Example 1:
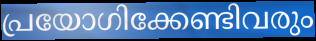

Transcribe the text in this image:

പ്രയോഗിക്കേണ്ടിവരും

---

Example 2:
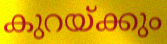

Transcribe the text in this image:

കുറയ്ക്കും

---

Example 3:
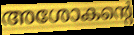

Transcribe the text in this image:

അശോകന്റെ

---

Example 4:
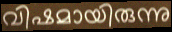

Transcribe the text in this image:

വിഷമായിരുന്നു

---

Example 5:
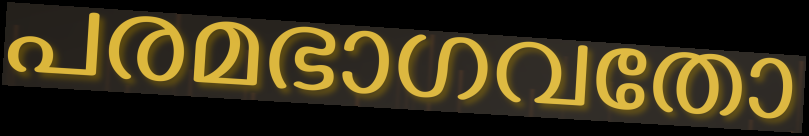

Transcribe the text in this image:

പരമഭാഗവതോ